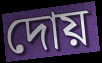
দোয়